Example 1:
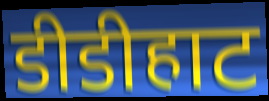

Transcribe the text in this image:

डीडीहाट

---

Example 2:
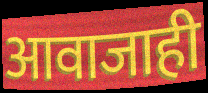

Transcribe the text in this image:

आवाजाही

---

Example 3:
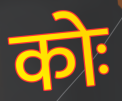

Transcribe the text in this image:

कोः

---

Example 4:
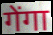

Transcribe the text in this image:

गेंगा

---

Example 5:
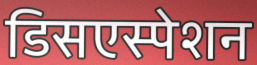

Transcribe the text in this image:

डिसएस्पेशन